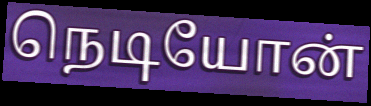
நெடியோன்